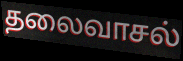
தலைவாசல்